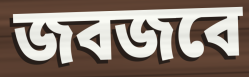
জবজবে